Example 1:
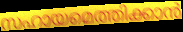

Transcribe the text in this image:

സഹായമെത്തിക്കാൻ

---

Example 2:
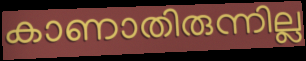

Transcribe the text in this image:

കാണാതിരുന്നില്ല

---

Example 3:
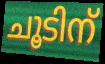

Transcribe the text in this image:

ചൂടിന്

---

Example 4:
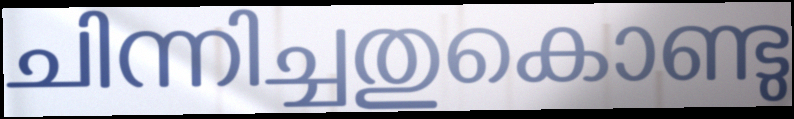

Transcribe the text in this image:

ചിന്നിച്ചതുകൊണ്ടു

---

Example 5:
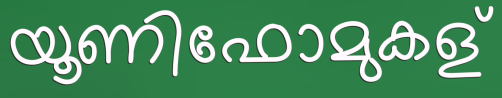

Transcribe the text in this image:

യൂണിഫോമുകള്